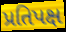
પ્રતિપક્ષ